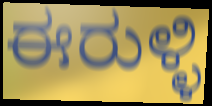
ಈರುಳ್ಳಿ